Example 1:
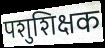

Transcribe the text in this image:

पशुशिक्षक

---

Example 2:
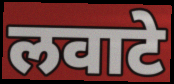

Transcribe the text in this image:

लवाटे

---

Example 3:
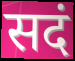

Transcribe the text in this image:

सदं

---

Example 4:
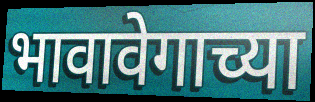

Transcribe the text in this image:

भावावेगाच्या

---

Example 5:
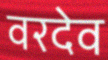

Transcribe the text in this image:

वरदेव